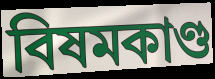
বিষমকাণ্ড